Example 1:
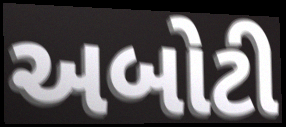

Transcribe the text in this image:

અબોટી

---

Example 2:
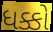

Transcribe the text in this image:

ધક્કો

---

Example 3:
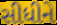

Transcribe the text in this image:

સીધીને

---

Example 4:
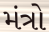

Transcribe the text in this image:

મંત્રો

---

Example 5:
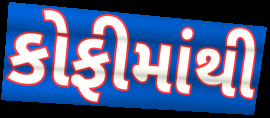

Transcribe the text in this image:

કોફીમાંથી